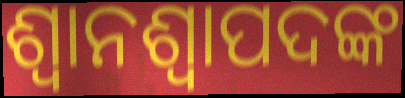
ଶ୍ୱାନଶ୍ୱାପଦଙ୍କ